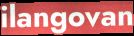
ilangovan